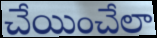
చేయించేలా